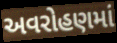
અવરોહણમાં